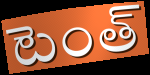
టెంత్